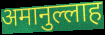
अमानुल्लाह